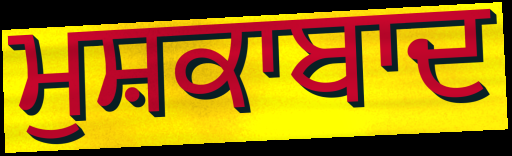
ਮੁਸ਼ਕਾਬਾਦ